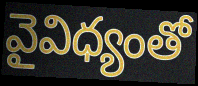
వైవిధ్యంతో